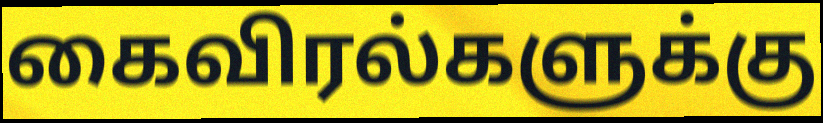
கைவிரல்களுக்கு